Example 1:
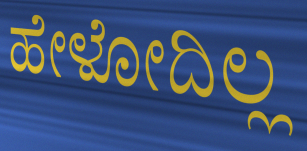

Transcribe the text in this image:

ಹೇಳೋದಿಲ್ಲ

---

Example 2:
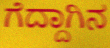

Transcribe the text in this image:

ಗೆದ್ದಾಗಿನ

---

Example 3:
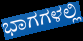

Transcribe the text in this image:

ಭಾಗಗಳಲ್ಲಿ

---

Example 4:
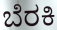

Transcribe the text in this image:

ಬೆರಕಿ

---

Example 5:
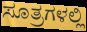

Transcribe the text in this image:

ಸೂತ್ರಗಳಲ್ಲಿ